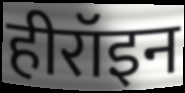
हीरॉइन